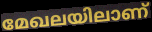
മേഖലയിലാണ്